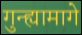
गुन्ह्यामागे